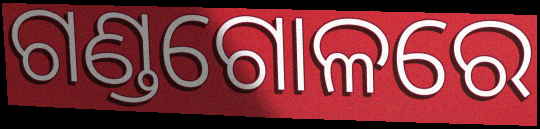
ଗଣ୍ଡଗୋଳରେ